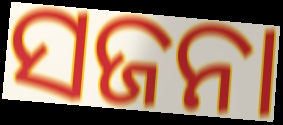
ସଜନା